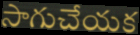
సాగుచేయక